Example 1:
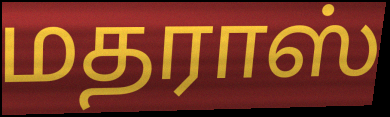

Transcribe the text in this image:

மதராஸ்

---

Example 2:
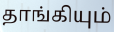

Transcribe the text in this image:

தாங்கியும்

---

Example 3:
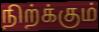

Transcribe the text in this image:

நிற்க்கும்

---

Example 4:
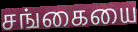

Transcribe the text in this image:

சங்கையை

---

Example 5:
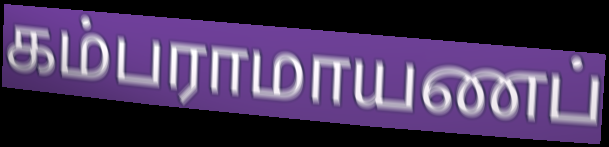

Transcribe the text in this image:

கம்பராமாயணப்